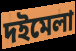
দইমেলা